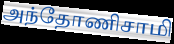
அந்தோணிசாமி